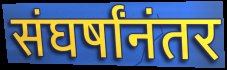
संघर्षांनंतर